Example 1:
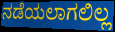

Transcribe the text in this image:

ನಡೆಯಲಾಗಲಿಲ್ಲ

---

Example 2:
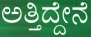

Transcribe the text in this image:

ಅತ್ತಿದ್ದೇನೆ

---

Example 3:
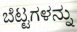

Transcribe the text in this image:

ಬೆಟ್ಟಗಳನ್ನು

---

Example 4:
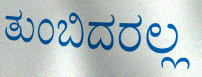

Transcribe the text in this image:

ತುಂಬಿದರಲ್ಲ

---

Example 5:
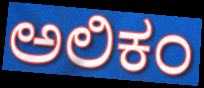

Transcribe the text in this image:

ಅಲಿಕಂ